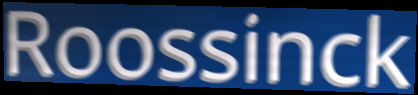
Roossinck